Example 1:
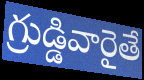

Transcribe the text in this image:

గ్రుడ్డివారైతే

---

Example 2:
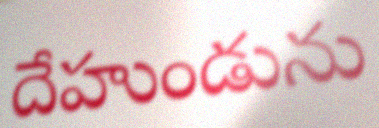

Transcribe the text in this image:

దేహుండును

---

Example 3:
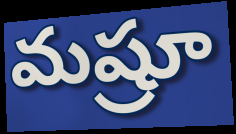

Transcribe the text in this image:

మష్రూ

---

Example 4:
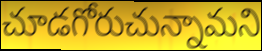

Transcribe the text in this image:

చూడగోరుచున్నామని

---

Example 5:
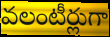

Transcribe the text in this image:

వలంటీర్లుగా